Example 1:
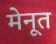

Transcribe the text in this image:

मेनूत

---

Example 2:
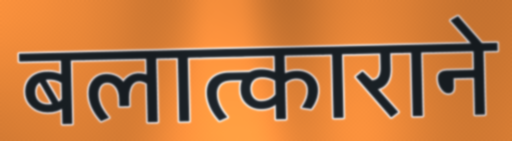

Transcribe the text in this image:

बलात्काराने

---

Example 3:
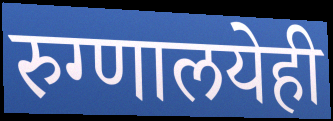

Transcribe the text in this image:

रुग्णालयेही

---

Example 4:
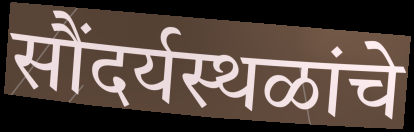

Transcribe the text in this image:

सौंदर्यस्थळांचे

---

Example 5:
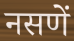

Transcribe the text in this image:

नसणें